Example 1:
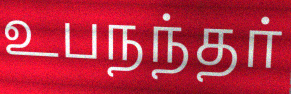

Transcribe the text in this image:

உபநந்தர்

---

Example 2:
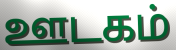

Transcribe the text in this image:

ஊடகம்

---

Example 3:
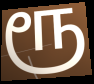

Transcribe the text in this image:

ரூ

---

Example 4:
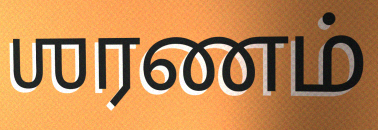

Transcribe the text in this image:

ஶரணம்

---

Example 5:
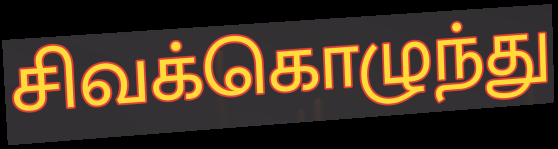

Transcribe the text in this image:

சிவக்கொழுந்து